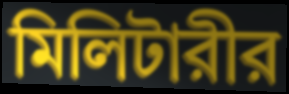
মিলিটারীর